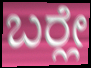
ಬರ್‍ಲೇ